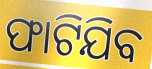
ଫାଟିଯିବ